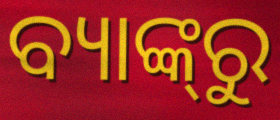
ବ୍ୟାଙ୍କ୍‌ରୁ